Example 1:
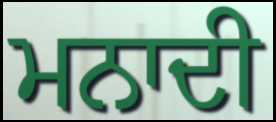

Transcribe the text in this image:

ਮਨਾਦੀ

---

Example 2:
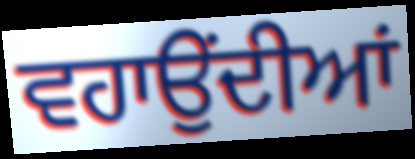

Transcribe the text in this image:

ਵਹਾਉਂਦੀਆਂ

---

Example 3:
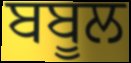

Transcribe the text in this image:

ਬਬੂਲ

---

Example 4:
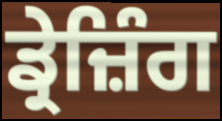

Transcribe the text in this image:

ਡ੍ਰੇਜ਼ਿੰਗ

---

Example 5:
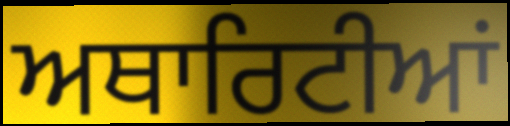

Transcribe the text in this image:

ਅਥਾਰਿਟੀਆਂ